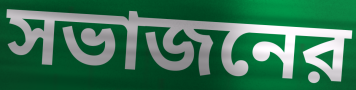
সভাজনের